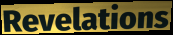
Revelations